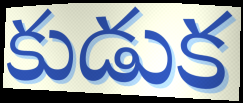
కుడుక